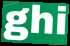
ghi